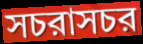
সচরাসচর